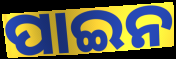
ପାଇନ